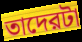
তাদেরটা